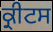
ਕ੍ਰੀਟਸ